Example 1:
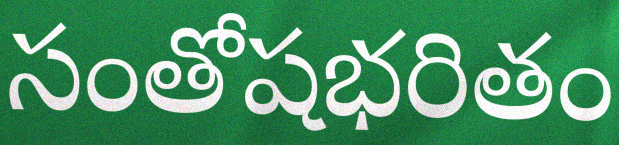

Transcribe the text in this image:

సంతోషభరితం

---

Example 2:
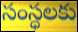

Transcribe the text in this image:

సంస్ధలకు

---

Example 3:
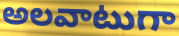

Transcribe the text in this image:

అలవాటుగా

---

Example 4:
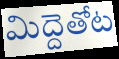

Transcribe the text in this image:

మిద్దెతోట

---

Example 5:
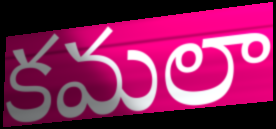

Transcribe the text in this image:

కమలా